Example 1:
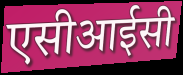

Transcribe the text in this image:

एसीआईसी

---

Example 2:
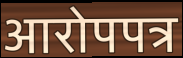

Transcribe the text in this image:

आरोपपत्र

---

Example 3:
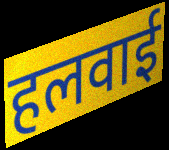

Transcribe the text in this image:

हलवाई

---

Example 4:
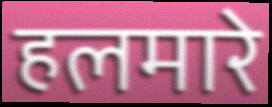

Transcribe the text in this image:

हलमारे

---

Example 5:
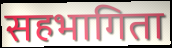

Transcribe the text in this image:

सहभागिता